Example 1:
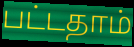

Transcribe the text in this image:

பட்டதாம்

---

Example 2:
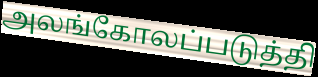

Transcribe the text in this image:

அலங்கோலப்படுத்தி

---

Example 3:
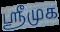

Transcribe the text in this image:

ஸ்ரீமுக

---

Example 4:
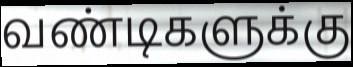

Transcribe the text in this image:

வண்டிகளுக்கு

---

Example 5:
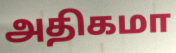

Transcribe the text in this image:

அதிகமா